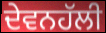
ਦੇਵਨਹੱਲੀ